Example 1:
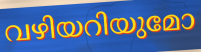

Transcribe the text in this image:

വഴിയറിയുമോ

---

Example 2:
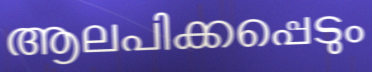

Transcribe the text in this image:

ആലപിക്കപ്പെടും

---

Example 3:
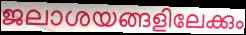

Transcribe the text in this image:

ജലാശയങ്ങളിലേക്കും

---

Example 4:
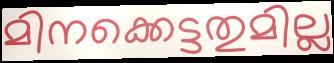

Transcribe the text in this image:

മിനക്കെട്ടതുമില്ല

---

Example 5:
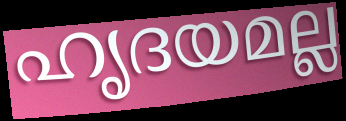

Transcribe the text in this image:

ഹൃദയമല്ല